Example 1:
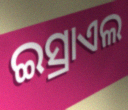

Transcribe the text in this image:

ଇସ୍ରାଏଲ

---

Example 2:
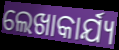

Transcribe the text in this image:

ଲେଖାକାର୍ଯ୍ୟ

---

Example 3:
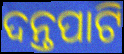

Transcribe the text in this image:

ଦନ୍ତପାଟି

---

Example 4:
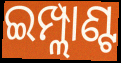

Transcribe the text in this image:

ଇମ୍ପ୍ଲାଣ୍ଟ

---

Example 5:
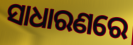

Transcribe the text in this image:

ସାଧାରଣରେ